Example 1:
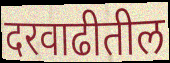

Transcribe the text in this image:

दरवाढीतील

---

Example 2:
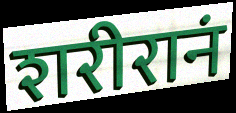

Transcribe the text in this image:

शरीरानं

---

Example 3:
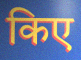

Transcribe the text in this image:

किए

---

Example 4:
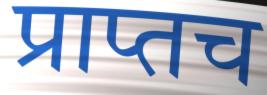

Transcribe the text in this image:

प्राप्तच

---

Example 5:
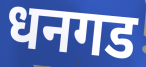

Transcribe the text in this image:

धनगड